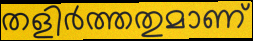
തളിർത്തതുമാണ്